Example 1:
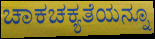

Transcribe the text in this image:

ಚಾಕಚಕ್ಯತೆಯನ್ನೂ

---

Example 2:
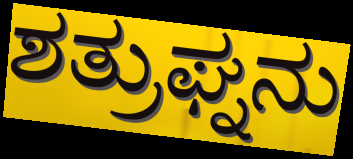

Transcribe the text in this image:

ಶತ್ರುಘ್ನನು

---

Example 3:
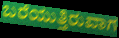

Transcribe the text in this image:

ಬರೆಯುತ್ತಿರುವಾಗ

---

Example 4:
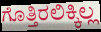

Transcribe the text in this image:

ಗೊತ್ತಿರಲಿಕ್ಕಿಲ್ಲ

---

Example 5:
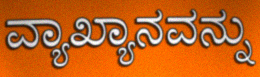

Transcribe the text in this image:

ವ್ಯಾಖ್ಯಾನವನ್ನು